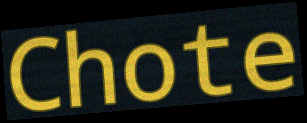
Chote